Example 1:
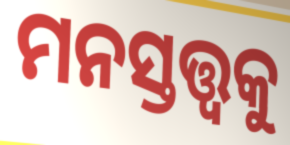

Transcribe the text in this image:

ମନସ୍ତତ୍ତ୍ୱକୁ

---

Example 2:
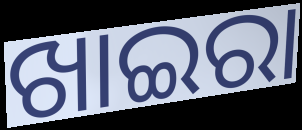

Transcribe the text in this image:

ଖାଇରା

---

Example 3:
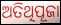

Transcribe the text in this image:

ଅତିଥିପୂଜା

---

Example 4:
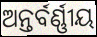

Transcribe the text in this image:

ଅନ୍ତର୍ବର୍ଣ୍ଣୀୟ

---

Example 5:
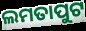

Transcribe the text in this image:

ଲମତାପୁଟ